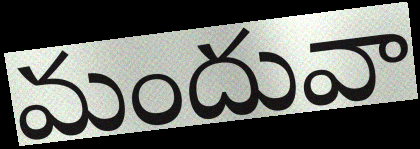
మందువా